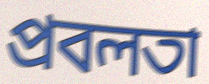
প্রবলতা